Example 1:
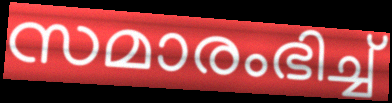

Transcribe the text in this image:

സമാരംഭിച്ച്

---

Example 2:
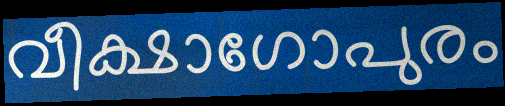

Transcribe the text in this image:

വീക്ഷാഗോപുരം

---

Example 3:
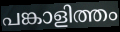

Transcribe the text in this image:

പങ്കാളിത്തം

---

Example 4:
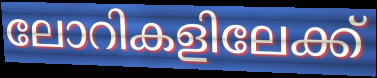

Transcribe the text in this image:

ലോറികളിലേക്ക്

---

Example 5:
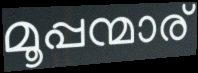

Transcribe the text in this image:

മൂപ്പന്മാര്